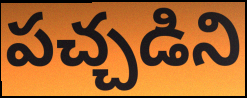
పచ్చడిని